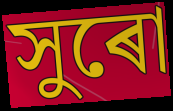
সুৰো